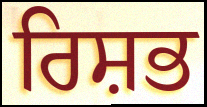
ਰਿਸ਼ਭ